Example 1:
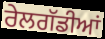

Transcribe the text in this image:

ਰੇਲਗੱਡੀਆਂ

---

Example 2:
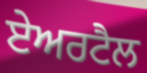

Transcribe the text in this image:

ਏਅਰਟੈਲ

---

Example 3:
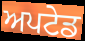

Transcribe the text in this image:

ਅਪਟੇਡ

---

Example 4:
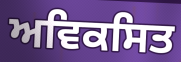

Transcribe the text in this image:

ਅਵਿਕਸਿਤ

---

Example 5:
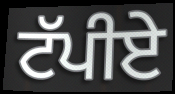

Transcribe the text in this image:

ਟੱਪੀਏ